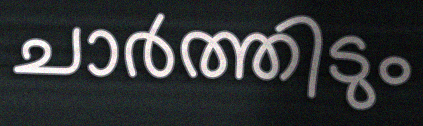
ചാർത്തിടും